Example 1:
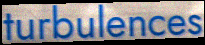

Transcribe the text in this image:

turbulences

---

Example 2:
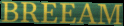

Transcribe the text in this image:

BREEAM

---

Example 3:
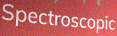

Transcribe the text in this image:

Spectroscopic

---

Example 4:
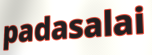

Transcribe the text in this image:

padasalai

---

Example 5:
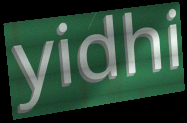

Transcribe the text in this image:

yidhi